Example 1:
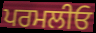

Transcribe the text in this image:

ਪਰਮਲੀਓ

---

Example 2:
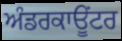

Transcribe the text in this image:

ਅੰਡਰਕਾਊਂਟਰ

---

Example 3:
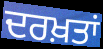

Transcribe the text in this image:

ਦਰਖ਼ਤਾਂ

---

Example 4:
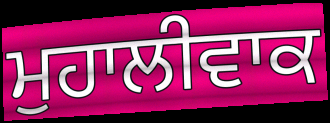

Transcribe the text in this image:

ਮੁਹਾਲੀਵਾਕ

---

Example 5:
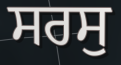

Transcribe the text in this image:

ਸਰਸੁ